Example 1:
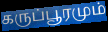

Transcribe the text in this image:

கருப்பூரமும்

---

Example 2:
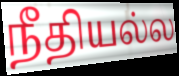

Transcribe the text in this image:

நீதியல்ல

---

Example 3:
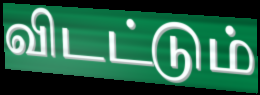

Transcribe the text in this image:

விடட்டும்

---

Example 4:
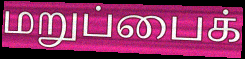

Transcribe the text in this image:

மறுப்பைக்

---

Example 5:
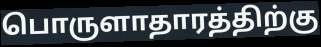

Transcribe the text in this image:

பொருளாதாரத்திற்கு